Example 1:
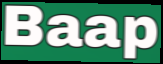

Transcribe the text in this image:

Baap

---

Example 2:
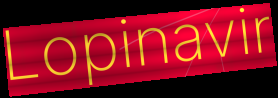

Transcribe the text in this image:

Lopinavir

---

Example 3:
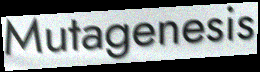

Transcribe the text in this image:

Mutagenesis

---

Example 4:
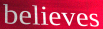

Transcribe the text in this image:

believes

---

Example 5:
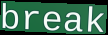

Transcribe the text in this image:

break